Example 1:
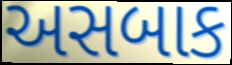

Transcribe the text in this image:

અસબાક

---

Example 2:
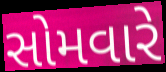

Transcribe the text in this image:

સોમવારે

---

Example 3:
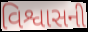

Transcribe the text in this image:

વિશ્વાસની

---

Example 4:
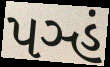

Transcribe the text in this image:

પઞ્હં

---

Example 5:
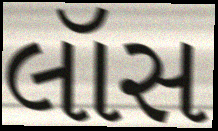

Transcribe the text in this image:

લૉસ